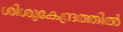
ശിശുകേന്ദ്രത്തിൽ